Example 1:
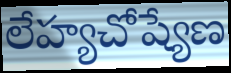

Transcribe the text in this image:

లేహ్యచోష్యేణ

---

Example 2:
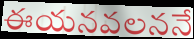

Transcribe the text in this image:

ఈయనవలననే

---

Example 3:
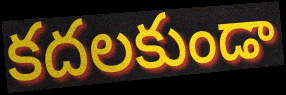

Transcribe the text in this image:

కదలకుండా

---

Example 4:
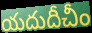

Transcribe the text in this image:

యదుదీచీం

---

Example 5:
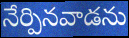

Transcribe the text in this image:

నేర్పినవాడను